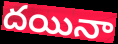
దయినా